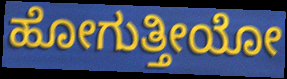
ಹೋಗುತ್ತೀಯೋ